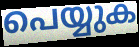
പെയ്യുക